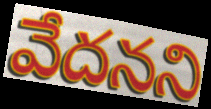
వేదనని